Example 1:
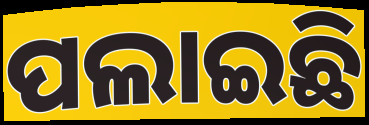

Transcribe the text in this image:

ପଲାଇଛି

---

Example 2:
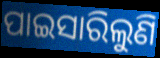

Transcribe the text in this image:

ପାଇସାରିଲୁଣି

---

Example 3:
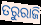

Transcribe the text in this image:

ତରୁରାଜି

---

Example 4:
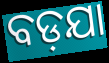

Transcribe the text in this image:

ବଡ଼ଯା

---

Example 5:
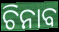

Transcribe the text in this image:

ଚିନାବ